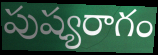
పుష్యరాగం